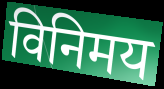
विनिमय